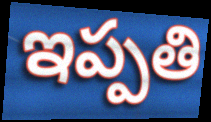
ఇప్పతి